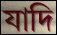
যাদি